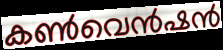
കൺവെൻഷൻ